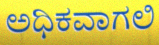
ಅಧಿಕವಾಗಲಿ